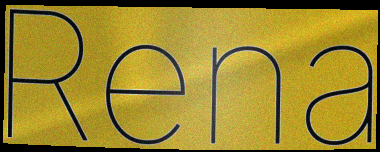
Rena